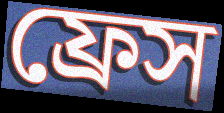
ফ্রেস